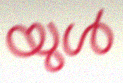
യുൾ